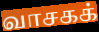
வாசகக்